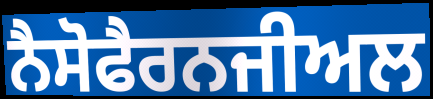
ਨੈਸੋਫੈਰਨਜੀਅਲ